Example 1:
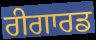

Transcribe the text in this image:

ਰੀਗਾਰਡ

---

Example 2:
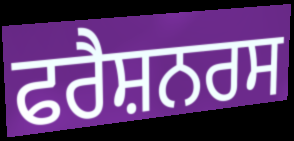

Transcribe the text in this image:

ਫਰੈਸ਼ਨਰਸ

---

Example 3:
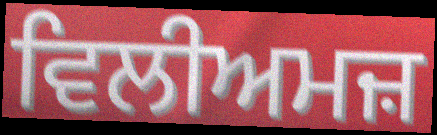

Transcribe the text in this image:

ਵਿਲੀਅਮਜ਼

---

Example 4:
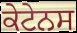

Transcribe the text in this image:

ਕੇਟੇਨਸ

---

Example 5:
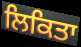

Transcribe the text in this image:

ਲਿਕਿਤਾ